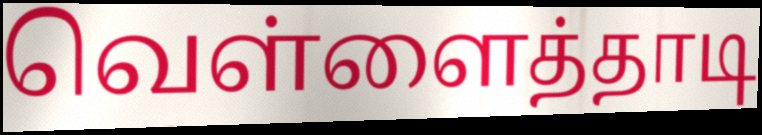
வெள்ளைத்தாடி